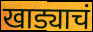
खाड्याचं